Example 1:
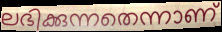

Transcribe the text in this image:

ലഭിക്കുന്നതെന്നാണ്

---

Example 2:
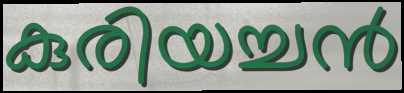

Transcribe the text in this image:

കുരിയച്ചൻ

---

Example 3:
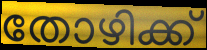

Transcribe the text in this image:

തോഴിക്ക്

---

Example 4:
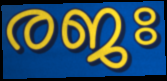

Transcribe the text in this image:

രജഃ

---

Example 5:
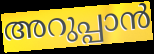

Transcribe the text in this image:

അറുപ്പാൻ